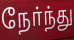
நேர்ந்து